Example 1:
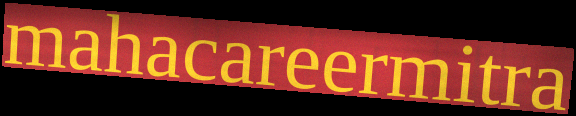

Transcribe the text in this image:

mahacareermitra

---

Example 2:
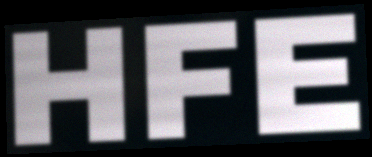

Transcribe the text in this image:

HFE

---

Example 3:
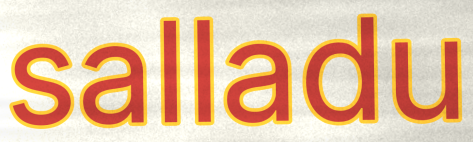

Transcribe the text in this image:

salladu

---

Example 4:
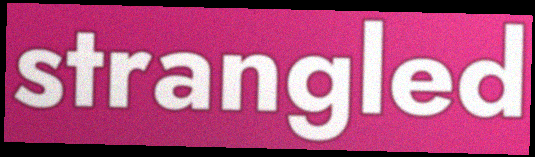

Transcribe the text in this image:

strangled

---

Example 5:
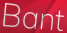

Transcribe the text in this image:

Bant